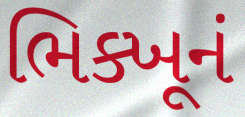
ભિક્ખૂનં